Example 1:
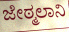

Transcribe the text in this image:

ಜೇಠ್ಮಲಾನಿ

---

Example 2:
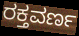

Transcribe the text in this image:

ರಕ್ತವರ್ಣ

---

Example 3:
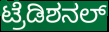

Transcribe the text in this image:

ಟ್ರೆಡಿಶನಲ್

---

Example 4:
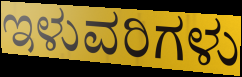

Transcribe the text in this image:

ಇಳುವರಿಗಳು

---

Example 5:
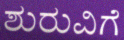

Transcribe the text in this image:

ಶುರುವಿಗೆ